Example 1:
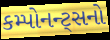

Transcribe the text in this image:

કમ્પોનન્ટ્સનો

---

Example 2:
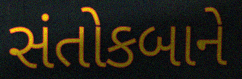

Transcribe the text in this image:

સંતોકબાને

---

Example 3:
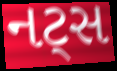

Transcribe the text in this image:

નટ્સ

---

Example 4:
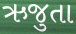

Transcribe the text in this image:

ઋજુતા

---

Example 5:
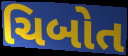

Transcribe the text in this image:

ચિબોત